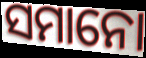
ସମାନୋ